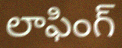
లాఫింగ్